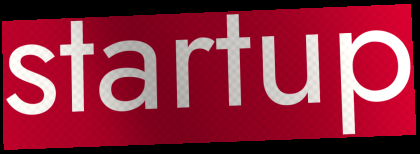
startup